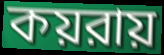
কয়রায়